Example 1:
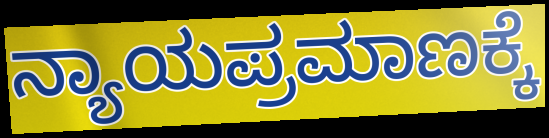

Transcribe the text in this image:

ನ್ಯಾಯಪ್ರಮಾಣಕ್ಕೆ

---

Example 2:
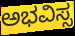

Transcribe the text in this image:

ಅಭವಿಸ್ಸ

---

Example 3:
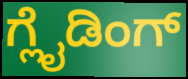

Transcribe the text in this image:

ಗ್ಲೈಡಿಂಗ್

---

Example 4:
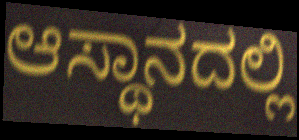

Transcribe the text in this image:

ಆಸ್ಥಾನದಲ್ಲಿ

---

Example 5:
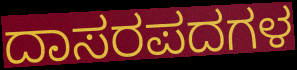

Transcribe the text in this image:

ದಾಸರಪದಗಳ